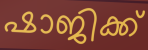
ഷാജിക്ക്